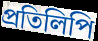
প্রতিলিপি